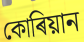
কোৰিয়ান